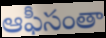
ఆఫీసంతా